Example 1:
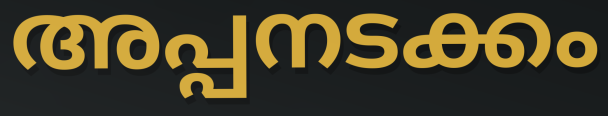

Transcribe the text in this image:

അപ്പനടക്കം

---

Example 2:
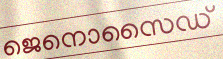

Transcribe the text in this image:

ജെനൊസൈഡ്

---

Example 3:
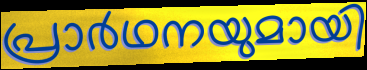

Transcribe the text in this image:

പ്രാർഥനയുമായി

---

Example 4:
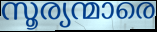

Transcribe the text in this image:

സൂര്യന്മാരെ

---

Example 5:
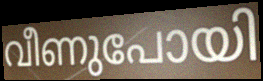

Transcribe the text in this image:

വീണുപോയി